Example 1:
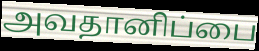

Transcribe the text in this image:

அவதானிப்பை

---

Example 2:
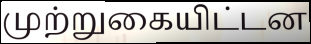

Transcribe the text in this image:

முற்றுகையிட்டன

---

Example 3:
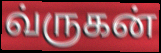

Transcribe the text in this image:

வ்ருகன்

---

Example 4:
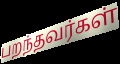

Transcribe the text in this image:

பறந்தவர்கள்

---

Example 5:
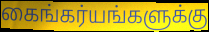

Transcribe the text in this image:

கைங்கர்யங்களுக்கு